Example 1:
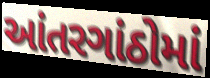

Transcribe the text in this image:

આંતરગાંઠોમાં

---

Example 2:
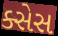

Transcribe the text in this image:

ક્સેસ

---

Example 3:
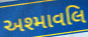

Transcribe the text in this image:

અશ્માવલિ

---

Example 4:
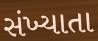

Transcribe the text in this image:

સંખ્યાતા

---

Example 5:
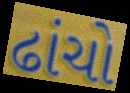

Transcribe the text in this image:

ઢાંચો